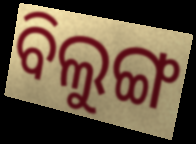
ବିଲୁଙ୍ଗ